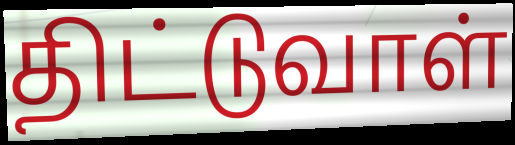
திட்டுவாள்